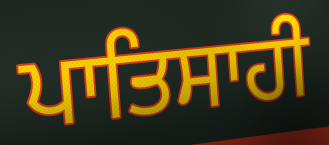
ਪਾਤਿਸਾਹੀ